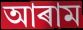
আৰাম